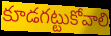
కూడగట్టుకోవాలి